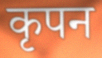
कृपन